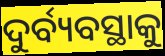
ଦୁର୍ବ୍ୟବସ୍ଥାକୁ